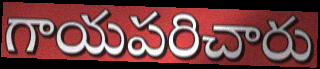
గాయపరిచారు